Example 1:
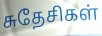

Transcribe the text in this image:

சுதேசிகள்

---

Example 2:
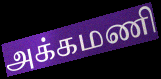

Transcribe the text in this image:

அக்கமணி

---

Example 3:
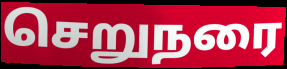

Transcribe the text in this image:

செறுநரை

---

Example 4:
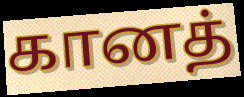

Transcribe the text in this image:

கானத்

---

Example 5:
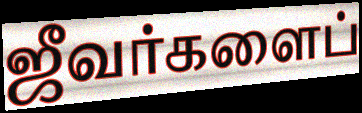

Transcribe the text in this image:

ஜீவர்களைப்